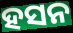
ହସନ